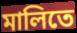
মালিতে